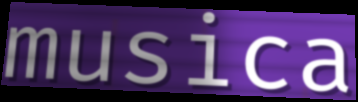
musica